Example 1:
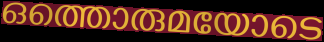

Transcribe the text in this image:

ഒത്തൊരുമയോടെ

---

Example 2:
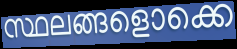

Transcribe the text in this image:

സ്ഥലങ്ങളൊക്കെ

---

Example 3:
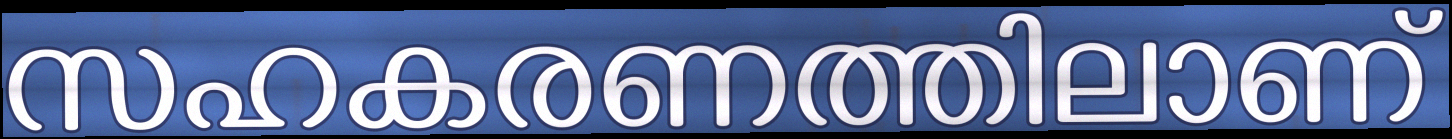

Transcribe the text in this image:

സഹകരണത്തിലാണ്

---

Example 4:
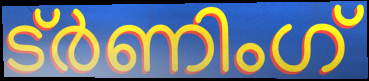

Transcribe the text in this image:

ട്ർണിംഗ്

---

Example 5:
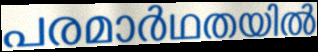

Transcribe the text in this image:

പരമാർഥതയിൽ